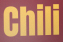
Chili